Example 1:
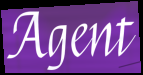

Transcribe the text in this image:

Agent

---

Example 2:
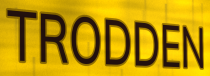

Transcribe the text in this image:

TRODDEN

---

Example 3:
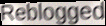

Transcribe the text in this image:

Reblogged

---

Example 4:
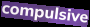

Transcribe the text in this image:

compulsive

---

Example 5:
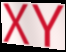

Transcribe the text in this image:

XY